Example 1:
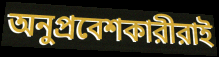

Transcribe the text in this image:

অনুপ্রবেশকারীরাই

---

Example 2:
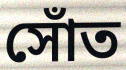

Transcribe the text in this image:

সোঁত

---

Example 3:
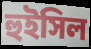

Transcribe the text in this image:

হুইসিল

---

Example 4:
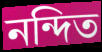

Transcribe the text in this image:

নন্দিত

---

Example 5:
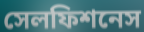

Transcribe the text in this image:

সেলফিশনেস